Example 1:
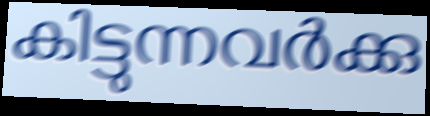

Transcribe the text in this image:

കിട്ടുന്നവർക്കു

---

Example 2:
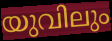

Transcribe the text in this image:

യുവിലും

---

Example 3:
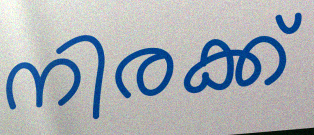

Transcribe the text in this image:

നിരക്ക്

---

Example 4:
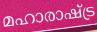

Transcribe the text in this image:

മഹാരാഷ്ട്ര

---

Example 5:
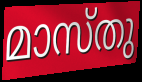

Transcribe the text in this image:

മാസ്തു